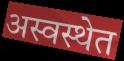
अस्वस्थेत